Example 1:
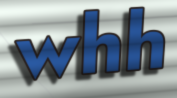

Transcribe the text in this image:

whh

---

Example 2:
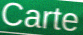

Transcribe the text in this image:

Carte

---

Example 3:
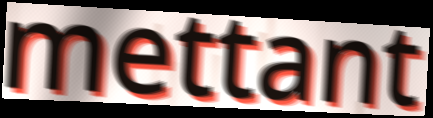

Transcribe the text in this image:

mettant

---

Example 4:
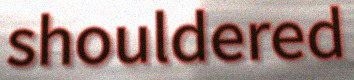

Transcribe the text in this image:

shouldered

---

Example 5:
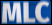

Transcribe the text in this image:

MLC